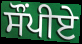
ਸੌਂਪੀਏ